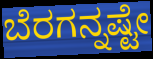
ಬೆರಗನ್ನಷ್ಟೇ